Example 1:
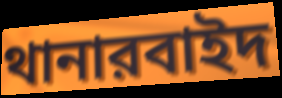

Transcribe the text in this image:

থানারবাইদ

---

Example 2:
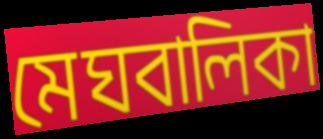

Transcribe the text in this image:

মেঘবালিকা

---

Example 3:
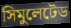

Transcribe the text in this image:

সিমুলেটেড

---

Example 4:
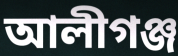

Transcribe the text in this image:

আলীগঞ্জ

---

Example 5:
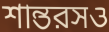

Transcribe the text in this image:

শান্তরসও